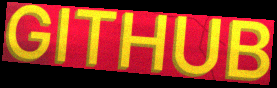
GITHUB